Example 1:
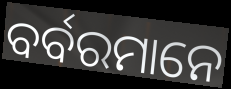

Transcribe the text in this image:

ବର୍ବରମାନେ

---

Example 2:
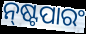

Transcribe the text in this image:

ନ୍‌ଷ୍ଟପାରଂ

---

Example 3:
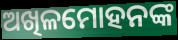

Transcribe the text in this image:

ଅଖିଳମୋହନଙ୍କ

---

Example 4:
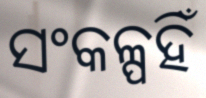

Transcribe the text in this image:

ସଂକଳ୍ପହିଁ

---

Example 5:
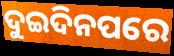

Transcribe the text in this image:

ଦୁଇଦିନପରେ